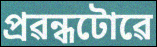
প্ৰৱন্ধটোৱে